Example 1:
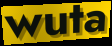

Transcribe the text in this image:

wuta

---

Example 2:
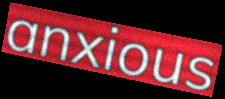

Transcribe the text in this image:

anxious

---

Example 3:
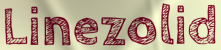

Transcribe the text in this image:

Linezolid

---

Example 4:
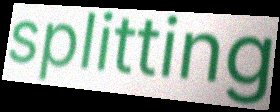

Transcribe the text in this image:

splitting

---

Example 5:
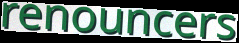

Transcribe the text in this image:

renouncers